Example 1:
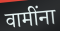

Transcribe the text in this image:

वामींना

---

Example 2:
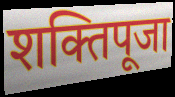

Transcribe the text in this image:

शक्तिपूजा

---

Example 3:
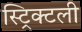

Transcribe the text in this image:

स्ट्रिक्टली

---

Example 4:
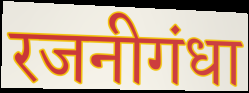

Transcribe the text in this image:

रजनीगंधा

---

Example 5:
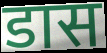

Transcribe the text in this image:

डास